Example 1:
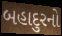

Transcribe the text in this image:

બહાદુરનો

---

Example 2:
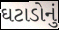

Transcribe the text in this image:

ઘટાડોનું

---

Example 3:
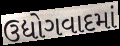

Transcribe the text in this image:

ઉદ્યોગવાદમાં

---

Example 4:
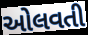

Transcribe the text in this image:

ઓલવતી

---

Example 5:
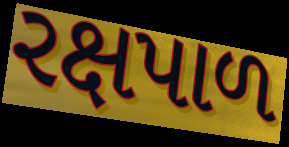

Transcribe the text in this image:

રક્ષપાળ